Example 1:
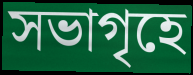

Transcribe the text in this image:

সভাগৃহে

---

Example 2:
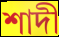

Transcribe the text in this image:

শাদী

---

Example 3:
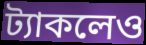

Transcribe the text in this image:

ট্যাকলেও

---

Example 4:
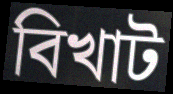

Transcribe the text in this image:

বিখাট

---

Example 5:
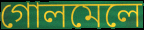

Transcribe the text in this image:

গোলমেলে